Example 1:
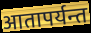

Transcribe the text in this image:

आतापर्यन्त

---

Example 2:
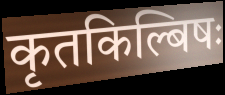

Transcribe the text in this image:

कृतकिल्बिषः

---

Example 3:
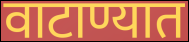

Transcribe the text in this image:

वाटाण्यात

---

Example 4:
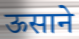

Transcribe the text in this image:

ऊसाने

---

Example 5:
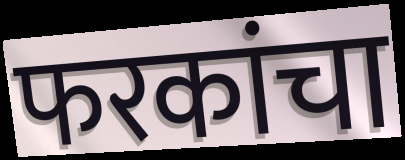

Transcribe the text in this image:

फरकांचा